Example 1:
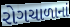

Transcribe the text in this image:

રોગચાળાનાં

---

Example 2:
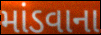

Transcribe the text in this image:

માંડવાના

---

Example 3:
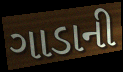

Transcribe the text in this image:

ગાડાની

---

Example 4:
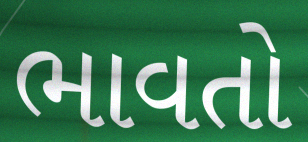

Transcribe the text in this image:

ભાવતો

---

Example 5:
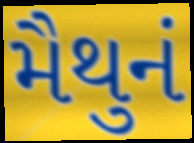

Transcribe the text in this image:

મૈથુનં